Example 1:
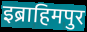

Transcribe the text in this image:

इब्राहिमपुर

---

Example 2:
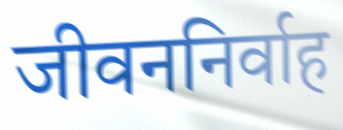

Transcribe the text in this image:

जीवननिर्वाह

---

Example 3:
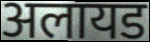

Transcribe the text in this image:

अलायड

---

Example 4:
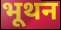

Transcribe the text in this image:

भूथन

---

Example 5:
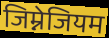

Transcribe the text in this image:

जिम्नेजियम